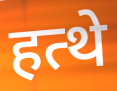
हत्थे